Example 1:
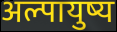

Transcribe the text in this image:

अल्पायुष्य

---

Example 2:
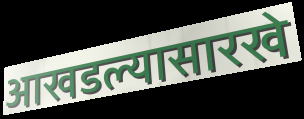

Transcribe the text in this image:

आखडल्यासारखे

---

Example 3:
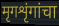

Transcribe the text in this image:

मृगशृंगांचा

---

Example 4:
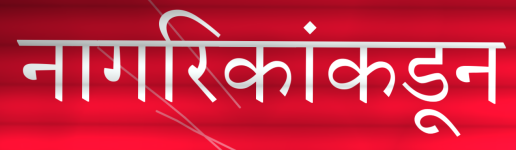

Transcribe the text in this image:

नागरिकांकडून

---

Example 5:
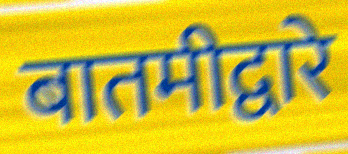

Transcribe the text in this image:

बातमीद्वारे